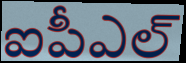
ఐపీఎల్